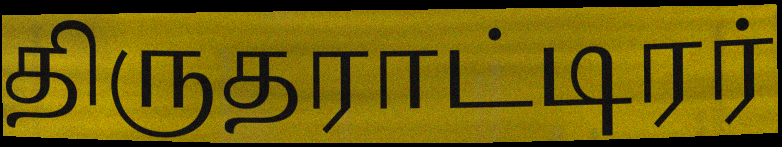
திருதராட்டிரர்